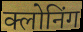
क्‍लोनिंग